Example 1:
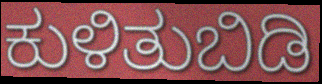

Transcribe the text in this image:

ಕುಳಿತುಬಿಡಿ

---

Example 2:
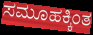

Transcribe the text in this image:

ಸಮೂಹಕ್ಕಿಂತ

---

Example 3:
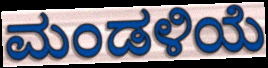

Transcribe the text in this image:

ಮಂಡಳಿಯೆ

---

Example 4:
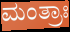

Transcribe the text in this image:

ಮಂತ್ರಾಃ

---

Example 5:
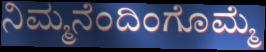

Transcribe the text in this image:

ನಿಮ್ಮನೆಂದಿಂಗೊಮ್ಮೆ